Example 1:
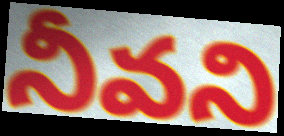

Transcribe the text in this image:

నీవని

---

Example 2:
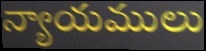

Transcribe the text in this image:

న్యాయములు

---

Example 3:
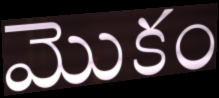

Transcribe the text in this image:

మొకం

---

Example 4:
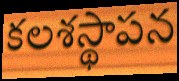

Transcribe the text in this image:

కలశస్థాపన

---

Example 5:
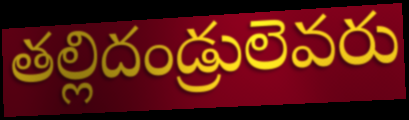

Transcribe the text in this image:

తల్లిదండ్రులెవరు